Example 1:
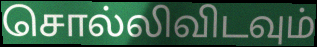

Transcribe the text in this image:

சொல்லிவிடவும்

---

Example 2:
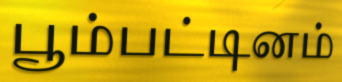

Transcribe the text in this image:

பூம்பட்டினம்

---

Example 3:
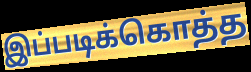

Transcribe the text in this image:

இப்படிக்கொத்த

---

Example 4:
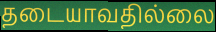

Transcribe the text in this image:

தடையாவதில்லை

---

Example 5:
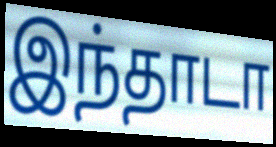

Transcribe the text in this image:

இந்தாடா